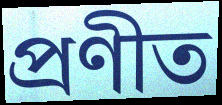
প্ৰণীত